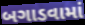
બગાડવામાં